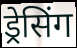
ड्रेसिंग